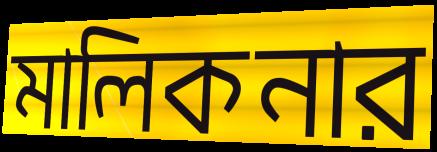
মালিকনার